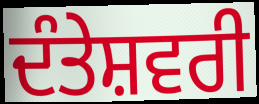
ਦੰਤੇਸ਼ਵਰੀ